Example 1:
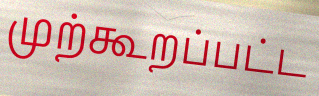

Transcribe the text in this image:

முற்கூறப்பட்ட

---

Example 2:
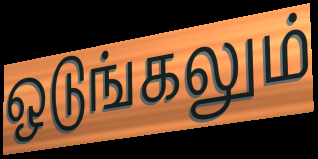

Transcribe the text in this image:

ஒடுங்கலும்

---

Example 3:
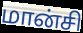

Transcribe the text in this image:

மான்சி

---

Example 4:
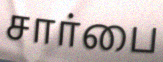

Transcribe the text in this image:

சார்பை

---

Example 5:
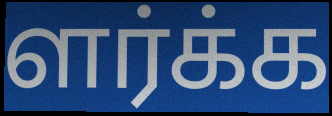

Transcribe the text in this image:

ளர்க்க